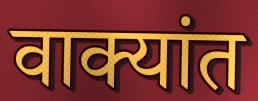
वाक्यांत